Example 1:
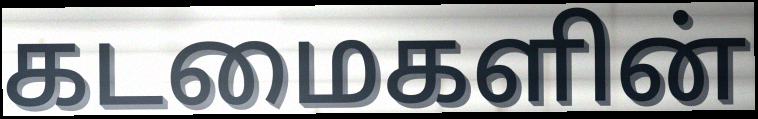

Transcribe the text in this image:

கடமைகளின்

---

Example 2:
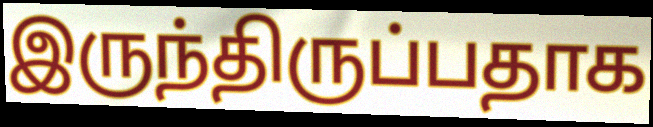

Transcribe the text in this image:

இருந்திருப்பதாக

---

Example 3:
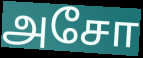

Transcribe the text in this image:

அசோ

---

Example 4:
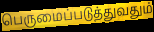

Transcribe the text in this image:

பெருமைப்படுத்துவதும்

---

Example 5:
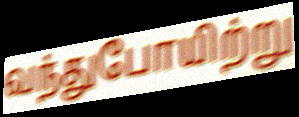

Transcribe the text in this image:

வந்துபோயிற்று